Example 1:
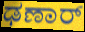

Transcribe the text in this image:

ಢಣಾರ್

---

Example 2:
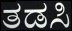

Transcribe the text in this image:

ತಡಸಿ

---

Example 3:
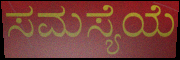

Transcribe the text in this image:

ಸಮಸ್ಯೆಯೆ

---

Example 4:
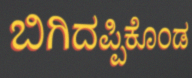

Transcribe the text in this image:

ಬಿಗಿದಪ್ಪಿಕೊಂಡ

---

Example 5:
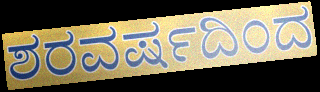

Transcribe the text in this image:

ಶರವರ್ಷದಿಂದ